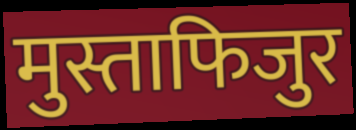
मुस्ताफिजुर